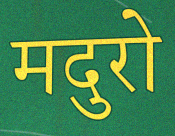
मदुरो